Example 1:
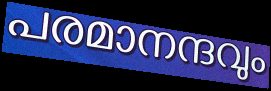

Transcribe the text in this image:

പരമാനന്ദവും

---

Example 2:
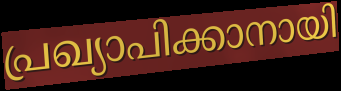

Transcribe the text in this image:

പ്രഖ്യാപിക്കാനായി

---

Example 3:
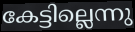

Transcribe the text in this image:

കേട്ടില്ലെന്നു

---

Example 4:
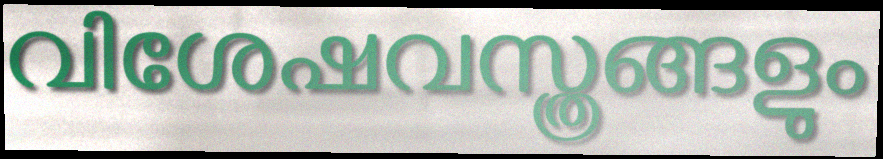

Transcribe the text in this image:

വിശേഷവസ്ത്രങ്ങളും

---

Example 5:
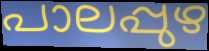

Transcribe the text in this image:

പാലപ്പുഴ